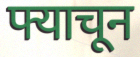
फ्याचून